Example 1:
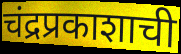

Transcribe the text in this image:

चंद्रप्रकाशाची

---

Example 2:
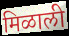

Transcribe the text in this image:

मिळाली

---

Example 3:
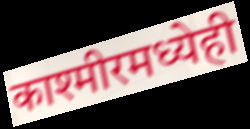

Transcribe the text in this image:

काश्‍मीरमध्येही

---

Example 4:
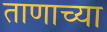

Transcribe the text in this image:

ताणाच्या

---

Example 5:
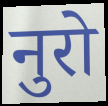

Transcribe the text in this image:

नुरो